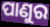
ପାଣୁର